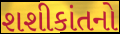
શશીકાંતનો